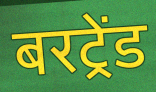
बरट्रेंड